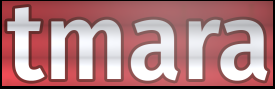
tmara